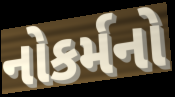
નોકર્મનો